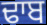
ਢਾਬ